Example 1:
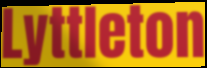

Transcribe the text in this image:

Lyttleton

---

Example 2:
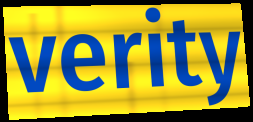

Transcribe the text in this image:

verity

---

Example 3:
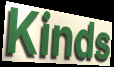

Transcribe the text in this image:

Kinds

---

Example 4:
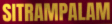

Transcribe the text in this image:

SITRAMPALAM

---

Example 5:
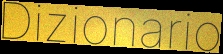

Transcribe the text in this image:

Dizionario